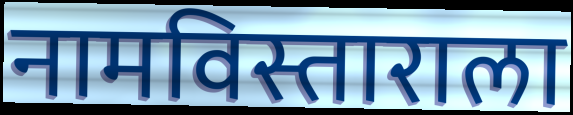
नामविस्ताराला